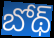
బోథ్